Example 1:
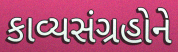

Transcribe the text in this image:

કાવ્યસંગ્રહોને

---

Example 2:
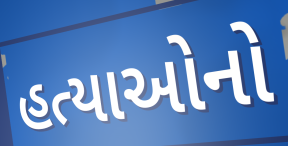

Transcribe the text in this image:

હત્યાઓનો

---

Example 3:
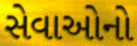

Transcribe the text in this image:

સેવાઓનો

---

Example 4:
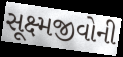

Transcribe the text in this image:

સૂક્ષ્મજીવોની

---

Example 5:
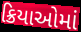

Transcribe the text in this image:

ક્રિયાઓમાં